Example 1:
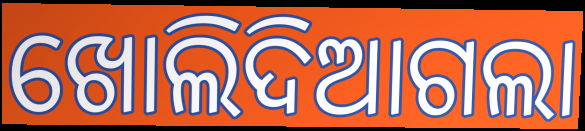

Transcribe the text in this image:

ଖୋଲିଦିଆଗଲା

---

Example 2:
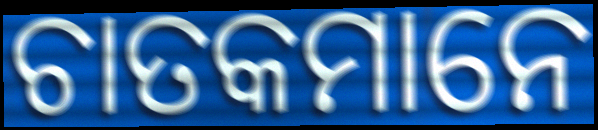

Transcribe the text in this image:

ଚାତକମାନେ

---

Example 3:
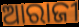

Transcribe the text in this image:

ଆରାଜୀ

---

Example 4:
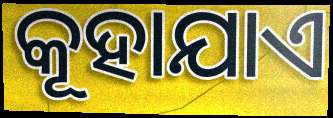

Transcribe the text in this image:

କୂହାଯାଏ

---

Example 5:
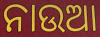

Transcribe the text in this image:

ନାଉଆ